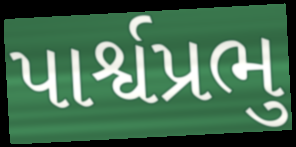
પાર્શ્વપ્રભુ